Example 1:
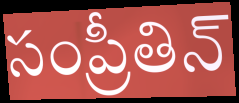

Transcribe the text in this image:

సంప్రీతిన్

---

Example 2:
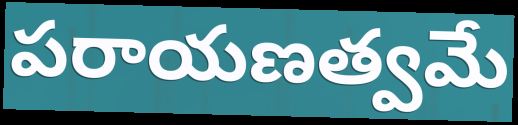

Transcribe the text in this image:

పరాయణత్వమే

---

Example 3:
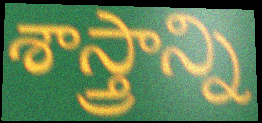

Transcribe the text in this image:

శాస్త్రాన్ని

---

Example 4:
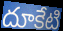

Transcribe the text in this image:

దూకేటి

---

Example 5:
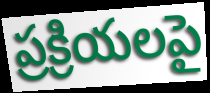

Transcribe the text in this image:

ప్రక్రియలపై